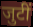
जुटीं